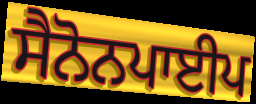
ਸੈਨੋਨਪਾਈਪ